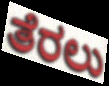
ತೆರಲು